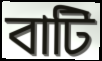
বাটি